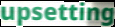
upsetting